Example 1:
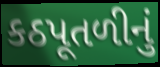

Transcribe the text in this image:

કઠપૂતળીનું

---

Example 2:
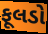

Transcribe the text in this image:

ફૂલડો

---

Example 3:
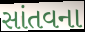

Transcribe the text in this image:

સાંતવના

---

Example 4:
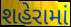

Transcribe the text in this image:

શહેરામાં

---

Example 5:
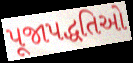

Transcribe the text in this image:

પૂજાપદ્ધતિઓ